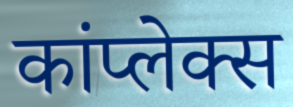
कांप्लेक्स